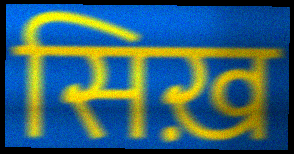
सिख़